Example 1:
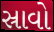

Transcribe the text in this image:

સ્રાવો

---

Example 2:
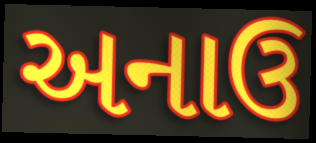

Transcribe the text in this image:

અનાઉ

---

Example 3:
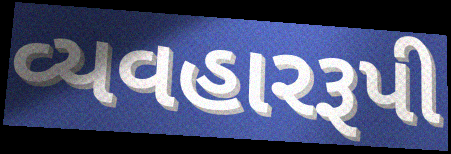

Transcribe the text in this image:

વ્યવહારરૂપી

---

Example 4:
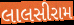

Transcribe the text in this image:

લાલસીરામ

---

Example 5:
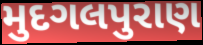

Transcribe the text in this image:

મુદગલપુરાણ